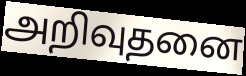
அறிவுதனை